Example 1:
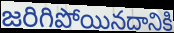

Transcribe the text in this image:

జరిగిపోయినదానికి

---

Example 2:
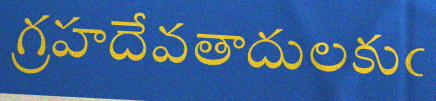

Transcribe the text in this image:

గ్రహదేవతాదులకుఁ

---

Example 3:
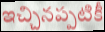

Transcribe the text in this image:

ఇచ్చినప్పటికీ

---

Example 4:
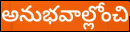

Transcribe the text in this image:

అనుభవాల్లోంచి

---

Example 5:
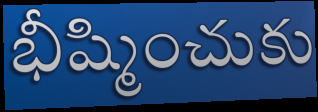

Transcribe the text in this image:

భీష్మించుకు